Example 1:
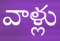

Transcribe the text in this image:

వాళ్లు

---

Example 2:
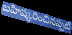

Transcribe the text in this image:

బహిష్కరించినప్పటి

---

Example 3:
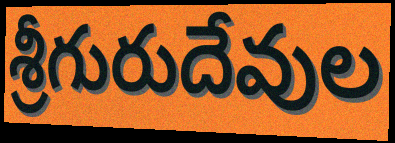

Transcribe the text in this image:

శ్రీగురుదేవుల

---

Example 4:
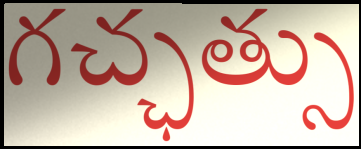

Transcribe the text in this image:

గచ్ఛత్సు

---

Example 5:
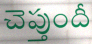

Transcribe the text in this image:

చెప్తుందీ